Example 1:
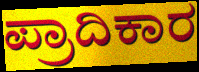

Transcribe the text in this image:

ಪ್ರಾದಿಕಾರ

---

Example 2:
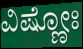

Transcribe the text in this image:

ವಿಷ್ಣೋಃ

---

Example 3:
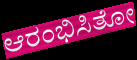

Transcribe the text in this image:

ಆರಂಭಿಸಿತೋ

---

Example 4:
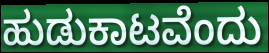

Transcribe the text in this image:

ಹುಡುಕಾಟವೆಂದು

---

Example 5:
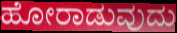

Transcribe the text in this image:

ಹೋರಾಡುವುದು